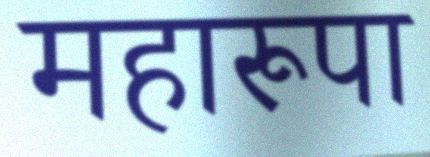
महारूपा